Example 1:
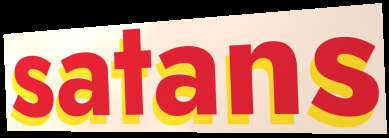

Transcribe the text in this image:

satans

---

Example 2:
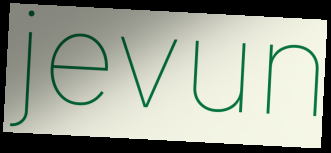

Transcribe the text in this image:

jevun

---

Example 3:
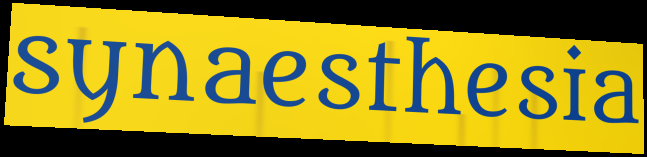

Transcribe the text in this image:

synaesthesia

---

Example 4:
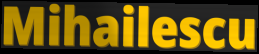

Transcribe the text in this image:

Mihailescu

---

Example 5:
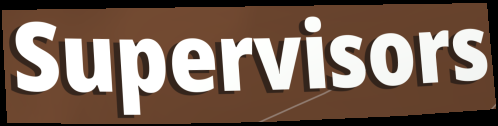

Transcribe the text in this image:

Supervisors